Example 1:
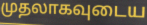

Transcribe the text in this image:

முதலாகவுடைய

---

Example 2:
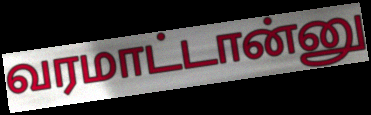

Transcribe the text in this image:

வரமாட்டான்னு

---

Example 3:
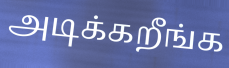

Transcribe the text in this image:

அடிக்கறீங்க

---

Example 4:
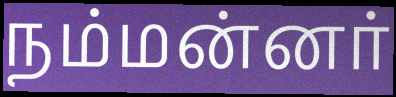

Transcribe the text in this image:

நம்மன்னர்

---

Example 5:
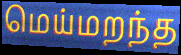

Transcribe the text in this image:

மெய்மறந்த